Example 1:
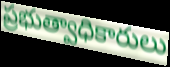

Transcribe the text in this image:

ప్రభుత్వాధికారులు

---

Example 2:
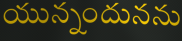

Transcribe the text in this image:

యున్నందునను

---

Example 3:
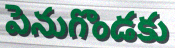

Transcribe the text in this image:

పెనుగొండకు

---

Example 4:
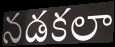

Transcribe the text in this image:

నడకలా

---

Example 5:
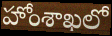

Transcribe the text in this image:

హోంశాఖలో